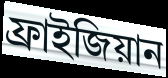
ফ্রাইজিয়ান